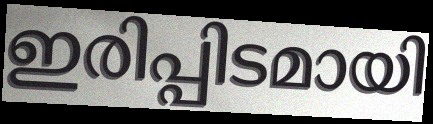
ഇരിപ്പിടമായി